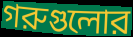
গরুগুলোর